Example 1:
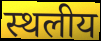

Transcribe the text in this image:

स्थलीय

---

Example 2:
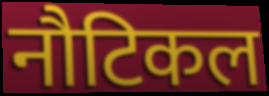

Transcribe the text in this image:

नौटिकल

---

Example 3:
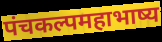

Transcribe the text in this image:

पंचकल्पमहाभाष्य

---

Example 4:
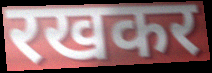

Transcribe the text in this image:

रखकर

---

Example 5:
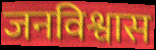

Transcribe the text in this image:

जनविश्वास